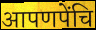
आपणपेंचि